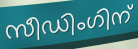
സീഡിംഗിന്